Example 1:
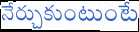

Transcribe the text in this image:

నేర్చుకుంటుంటే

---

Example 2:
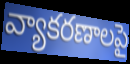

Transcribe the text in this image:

వ్యాకరణాలపై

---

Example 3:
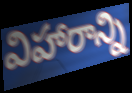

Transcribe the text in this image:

విహారాన్ని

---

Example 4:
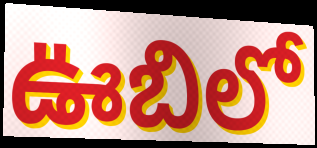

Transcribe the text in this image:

ఊబిలో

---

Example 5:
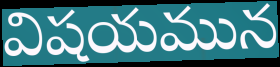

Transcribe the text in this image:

విషయమున